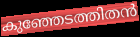
കുഞ്ഞേടത്തിതൻ